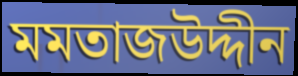
মমতাজউদ্দীন